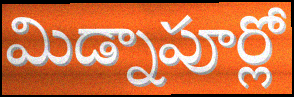
మిడ్నాపూర్లో